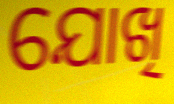
ଯୋଖି